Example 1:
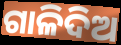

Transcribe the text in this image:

ଗାଳିଦିଅ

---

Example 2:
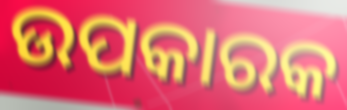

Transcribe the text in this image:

ଉପକାରକ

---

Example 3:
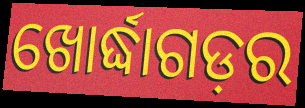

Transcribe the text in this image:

ଖୋର୍ଦ୍ଧାଗଡ଼ର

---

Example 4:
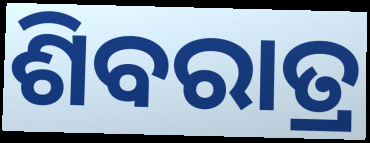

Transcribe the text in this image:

ଶିବରାତ୍ର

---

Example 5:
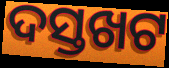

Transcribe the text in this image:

ଦସ୍ତଖଟ